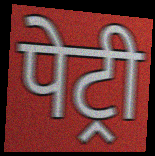
पेट्री